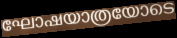
ഘോഷയാത്രയോടെ